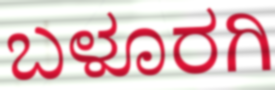
ಬಳೂರಗಿ